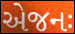
એજનઃ